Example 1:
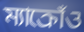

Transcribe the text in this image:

ম্যাক্রোঁও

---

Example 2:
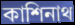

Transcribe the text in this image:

কাশিনাথ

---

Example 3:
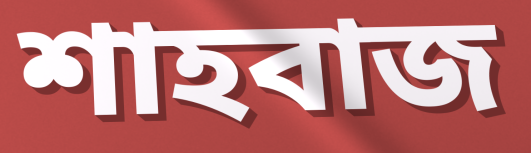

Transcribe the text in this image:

শাহবাজ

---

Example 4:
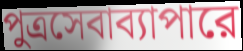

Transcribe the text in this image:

পুত্রসেবাব্যাপারে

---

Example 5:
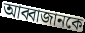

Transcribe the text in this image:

আব্বাজানকে